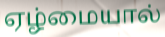
ஏழ்மையால்